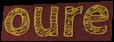
oure